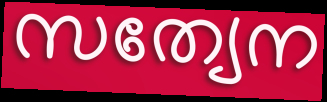
സത്യേന